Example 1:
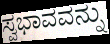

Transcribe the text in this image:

ಸ್ವಭಾವವನ್ನು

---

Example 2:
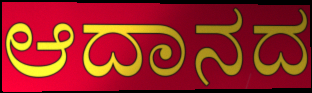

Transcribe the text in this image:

ಆದಾನದ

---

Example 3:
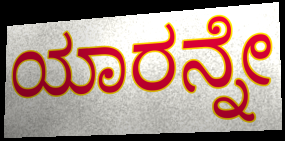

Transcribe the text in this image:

ಯಾರನ್ನೇ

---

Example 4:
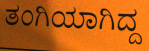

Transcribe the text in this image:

ತಂಗಿಯಾಗಿದ್ದ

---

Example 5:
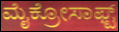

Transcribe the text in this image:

ಮೈಕ್ರೋಸಾಫ್ಟ್